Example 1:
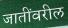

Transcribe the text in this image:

जातींवरील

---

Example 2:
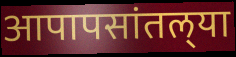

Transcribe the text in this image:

आपापसांतल्या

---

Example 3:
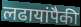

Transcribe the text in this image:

लढायांपैकी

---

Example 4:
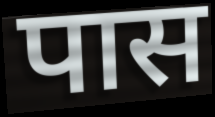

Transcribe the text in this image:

पास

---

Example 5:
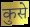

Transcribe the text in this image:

कुसे